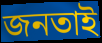
জনতাই